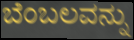
ಬೆಂಬಲವನ್ನು